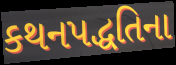
કથનપદ્ધતિના